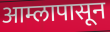
आम्लापासून